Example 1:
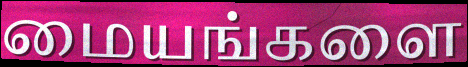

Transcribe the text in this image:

மையங்களை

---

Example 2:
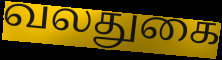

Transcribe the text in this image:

வலதுகை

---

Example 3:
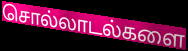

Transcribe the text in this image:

சொல்லாடல்களை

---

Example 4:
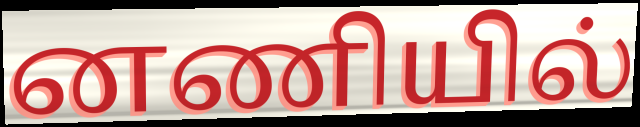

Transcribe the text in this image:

னணியில்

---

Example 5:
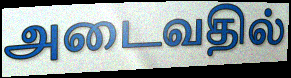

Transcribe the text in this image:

அடைவதில்